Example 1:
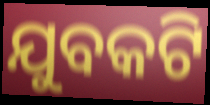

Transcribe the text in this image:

ଯୁବକଟି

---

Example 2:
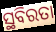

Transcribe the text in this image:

ସ୍ଥବିରତା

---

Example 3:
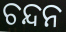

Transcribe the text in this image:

ଚନ୍ଦନ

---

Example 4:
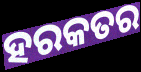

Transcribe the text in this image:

ହରକତର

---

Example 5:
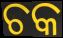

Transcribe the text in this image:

ଚକ